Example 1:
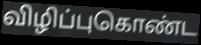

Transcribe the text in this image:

விழிப்புகொண்ட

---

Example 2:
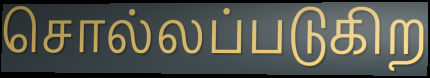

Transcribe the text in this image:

சொல்லப்படுகிற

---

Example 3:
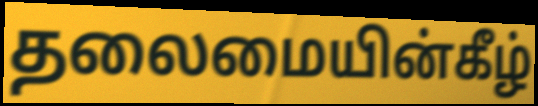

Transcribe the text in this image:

தலைமையின்கீழ்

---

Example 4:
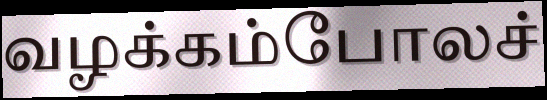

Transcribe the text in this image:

வழக்கம்போலச்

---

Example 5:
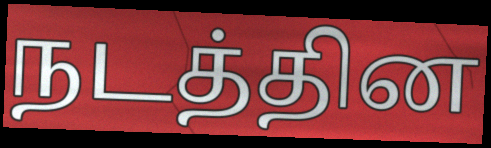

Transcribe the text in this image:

நடத்தின